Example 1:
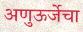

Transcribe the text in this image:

अणुऊर्जेचा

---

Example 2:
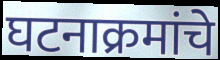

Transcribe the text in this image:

घटनाक्रमांचे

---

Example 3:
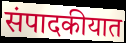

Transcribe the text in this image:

संपादकीयात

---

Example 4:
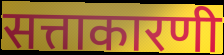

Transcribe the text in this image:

सत्ताकारणी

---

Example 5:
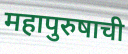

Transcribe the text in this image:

महापुरुषाची